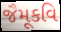
જૈમૂકવિ